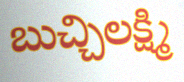
బుచ్చిలక్ష్మి